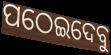
ପଠେଇଦେବୁ